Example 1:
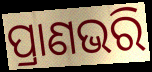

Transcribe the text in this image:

ପ୍ରାଣଭରି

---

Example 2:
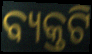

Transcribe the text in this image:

ବ୍ୟକ୍ତଟି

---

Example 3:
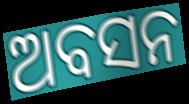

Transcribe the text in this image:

ଅବସନ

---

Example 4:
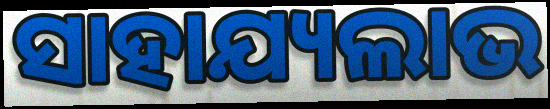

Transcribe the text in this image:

ସାହାଯ୍ୟଲାଭ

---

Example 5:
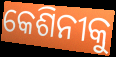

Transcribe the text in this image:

କେଶିନୀକୁ